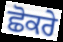
ਛੋਕਰੇ